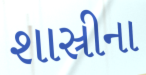
શાસ્રીના